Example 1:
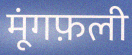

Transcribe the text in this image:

मूंगफ़ली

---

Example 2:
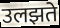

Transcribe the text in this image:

उलझते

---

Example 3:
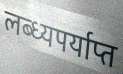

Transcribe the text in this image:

लब्ध्यपर्याप्त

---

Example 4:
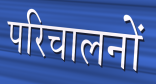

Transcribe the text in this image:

परिचालनों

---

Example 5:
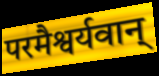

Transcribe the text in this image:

परमैश्वर्यवान्